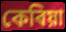
কেৰিয়া